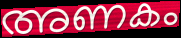
അണകം